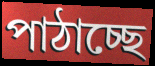
পাঠাচ্ছে